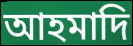
আহমাদি